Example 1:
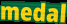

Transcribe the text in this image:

medal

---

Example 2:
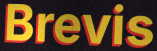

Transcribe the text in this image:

Brevis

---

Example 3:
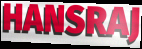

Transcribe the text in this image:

HANSRAJ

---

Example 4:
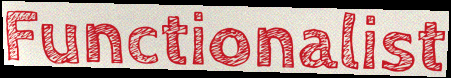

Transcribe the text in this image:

Functionalist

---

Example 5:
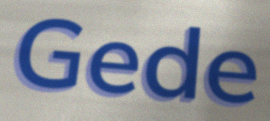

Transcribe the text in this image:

Gede